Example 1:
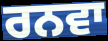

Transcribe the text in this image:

ਰਨਵਾ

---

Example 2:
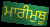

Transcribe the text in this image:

ਮਾਰੀਮੁਥੂ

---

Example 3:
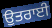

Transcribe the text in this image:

ਉਤਰਾਈ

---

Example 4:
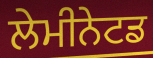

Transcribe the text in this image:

ਲੇਮੀਨੇਟਡ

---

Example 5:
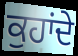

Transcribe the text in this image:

ਕੁਹਾਂਦੇ